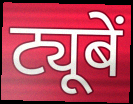
ट्यूबें